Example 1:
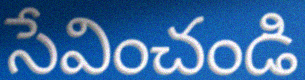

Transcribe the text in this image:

సేవించండి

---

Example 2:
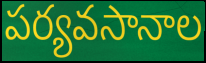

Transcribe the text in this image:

పర్యవసానాల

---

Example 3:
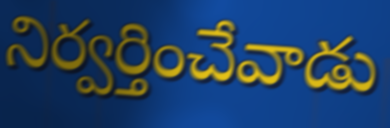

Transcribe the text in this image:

నిర్వర్తించేవాడు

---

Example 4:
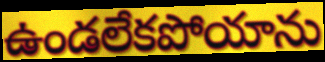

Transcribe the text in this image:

ఉండలేకపోయాను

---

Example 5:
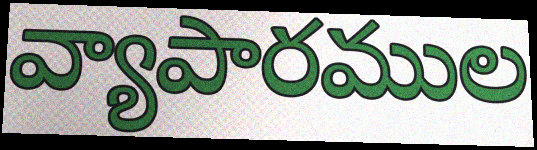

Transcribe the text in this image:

వ్యాపారముల